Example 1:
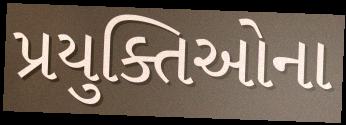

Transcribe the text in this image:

પ્રયુક્તિઓના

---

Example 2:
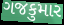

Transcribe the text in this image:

ગજકુમાર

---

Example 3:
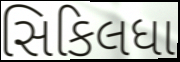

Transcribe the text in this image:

સિકિલધા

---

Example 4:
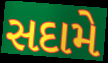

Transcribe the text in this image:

સદામે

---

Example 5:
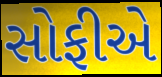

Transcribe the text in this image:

સોફીએ